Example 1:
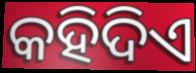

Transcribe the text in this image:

କହିଦିଏ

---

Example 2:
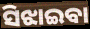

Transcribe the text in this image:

ସିଝାଇବା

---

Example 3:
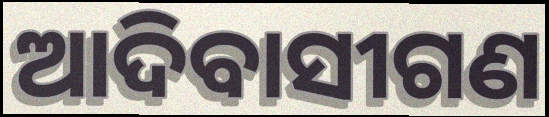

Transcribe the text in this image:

ଆଦିବାସୀଗଣ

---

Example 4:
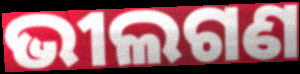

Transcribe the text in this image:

ଭୀଲଗଣ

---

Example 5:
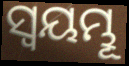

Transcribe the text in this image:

ସ୍ଵୟମ୍ଭୂ